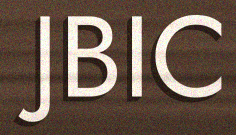
JBIC